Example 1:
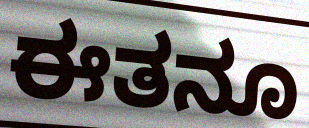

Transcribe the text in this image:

ಈತನೂ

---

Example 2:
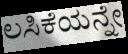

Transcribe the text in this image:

ಲಸಿಕೆಯನ್ನೇ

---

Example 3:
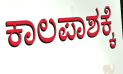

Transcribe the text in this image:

ಕಾಲಪಾಶಕ್ಕೆ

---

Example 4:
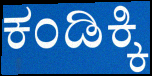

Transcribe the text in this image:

ಕಂಡಿಕ್ಕಿ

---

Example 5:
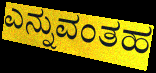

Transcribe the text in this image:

ಎನ್ನುವಂತಹ